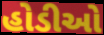
હોડીઓ